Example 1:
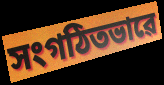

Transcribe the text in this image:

সংগঠিতভাৱে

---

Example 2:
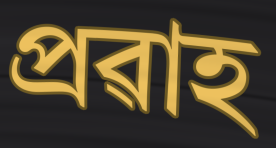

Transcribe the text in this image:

প্ৰৱাহ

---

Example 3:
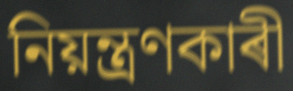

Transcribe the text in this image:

নিয়ন্ত্ৰণকাৰী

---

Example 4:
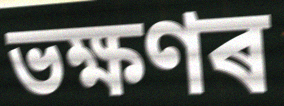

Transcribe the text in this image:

ভক্ষণৰ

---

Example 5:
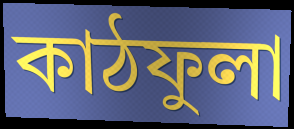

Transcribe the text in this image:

কাঠফুলা